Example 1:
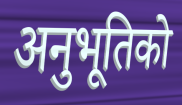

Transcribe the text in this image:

अनुभूतिको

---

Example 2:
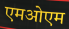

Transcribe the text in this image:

एमओएम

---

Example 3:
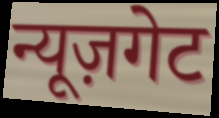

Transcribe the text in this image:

न्यूज़गेट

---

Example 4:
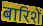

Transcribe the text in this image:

बारिशें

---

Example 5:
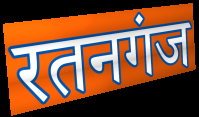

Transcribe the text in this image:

रतनगंज